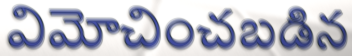
విమోచించబడిన